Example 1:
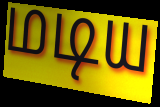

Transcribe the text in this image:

மடிய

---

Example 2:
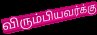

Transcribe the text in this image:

விரும்பியவர்க்கு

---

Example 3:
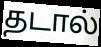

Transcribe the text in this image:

தடால்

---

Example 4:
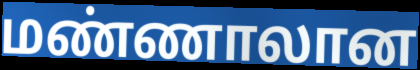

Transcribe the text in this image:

மண்ணாலான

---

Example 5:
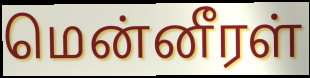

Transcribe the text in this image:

மென்னீரள்